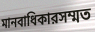
মানবাধিকারসম্মত